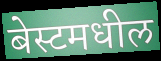
बेस्टमधील